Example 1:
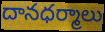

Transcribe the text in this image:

దానధర్మాలు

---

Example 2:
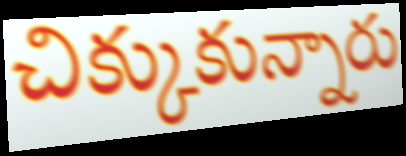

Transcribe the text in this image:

చిక్కుకున్నారు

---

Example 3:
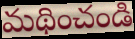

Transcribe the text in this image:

మథించండి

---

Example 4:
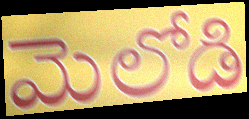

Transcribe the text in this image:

మెలోడి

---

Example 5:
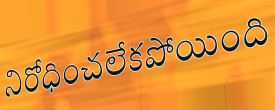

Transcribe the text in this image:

నిరోధించలేకపోయింది